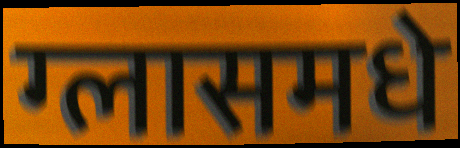
ग्लासमधे